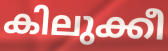
കിലുക്കീ